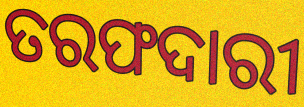
ତରଫଦାରୀ